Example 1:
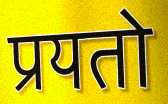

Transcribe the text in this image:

प्रयतो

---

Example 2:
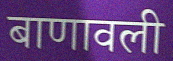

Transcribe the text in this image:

बाणावली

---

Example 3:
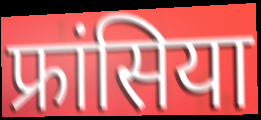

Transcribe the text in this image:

फ्रांसिया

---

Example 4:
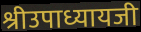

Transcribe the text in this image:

श्रीउपाध्यायजी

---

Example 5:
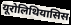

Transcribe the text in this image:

यूरोलिथियासिस